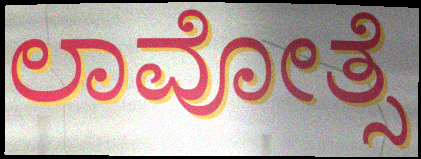
ಲಾವೋತ್ಸೆ